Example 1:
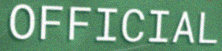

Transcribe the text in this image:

OFFICIAL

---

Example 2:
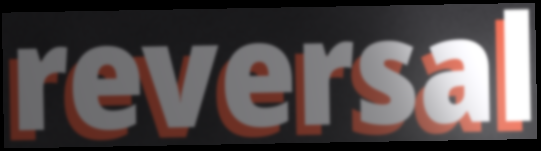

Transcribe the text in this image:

reversal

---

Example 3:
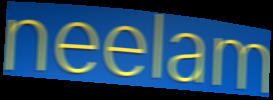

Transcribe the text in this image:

neelam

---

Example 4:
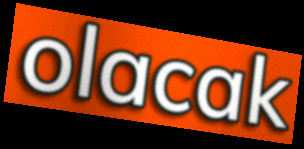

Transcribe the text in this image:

olacak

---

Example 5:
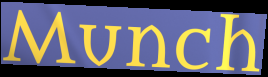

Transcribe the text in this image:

Munch